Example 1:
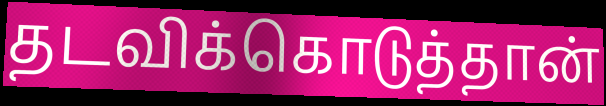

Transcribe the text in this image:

தடவிக்கொடுத்தான்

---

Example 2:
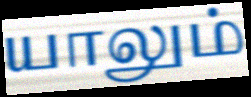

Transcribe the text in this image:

யாலும்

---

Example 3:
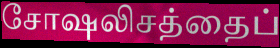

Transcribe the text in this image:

சோஷலிசத்தைப்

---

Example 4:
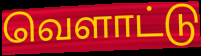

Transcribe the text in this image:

வெளாட்டு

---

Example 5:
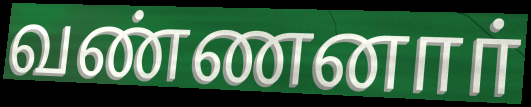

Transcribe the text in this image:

வண்ணனார்